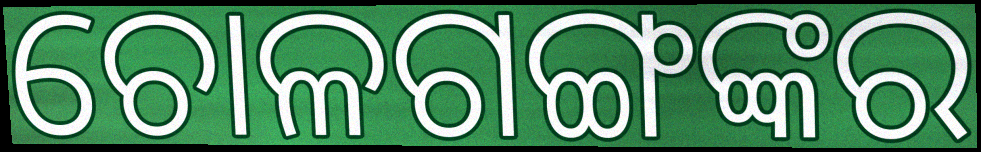
ଚୋଳଗଙ୍ଗଙ୍କର